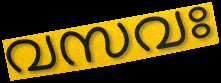
വസവഃ